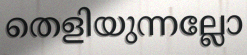
തെളിയുന്നല്ലോ